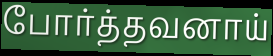
போர்த்தவனாய்